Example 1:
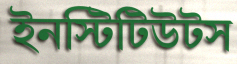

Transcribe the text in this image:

ইনস্টিটিউটস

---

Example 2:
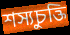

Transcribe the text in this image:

শস্যচুক্তি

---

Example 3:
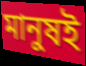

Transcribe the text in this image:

মানুষই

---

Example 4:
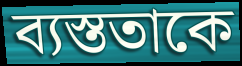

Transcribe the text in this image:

ব্যস্ততাকে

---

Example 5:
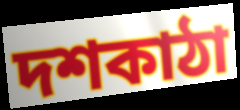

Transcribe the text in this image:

দশকাঠা